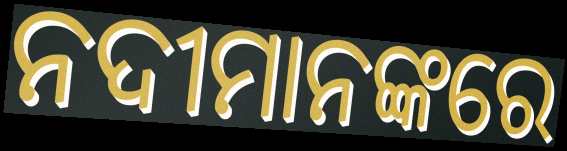
ନଦୀମାନଙ୍କରେ